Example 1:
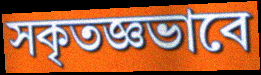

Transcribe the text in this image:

সকৃতজ্ঞভাবে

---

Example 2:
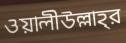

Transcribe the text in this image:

ওয়ালীউল্লাহ্‌র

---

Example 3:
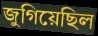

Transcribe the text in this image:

জুগিয়েছিল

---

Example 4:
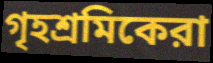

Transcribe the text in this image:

গৃহশ্রমিকেরা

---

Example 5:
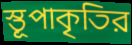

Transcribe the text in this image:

স্তূপাকৃতির